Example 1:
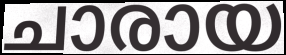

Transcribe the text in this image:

ചാരായ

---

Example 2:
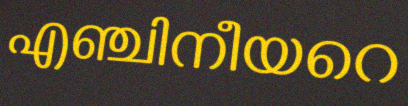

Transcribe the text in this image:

എഞ്ചിനീയറെ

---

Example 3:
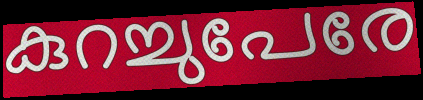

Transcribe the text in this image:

കുറച്ചുപേരേ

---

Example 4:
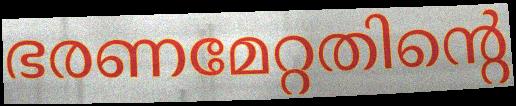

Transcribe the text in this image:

ഭരണമേറ്റതിന്റെ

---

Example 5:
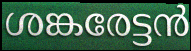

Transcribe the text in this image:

ശങ്കരേട്ടൻ